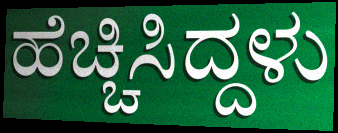
ಹೆಚ್ಚಿಸಿದ್ದಳು